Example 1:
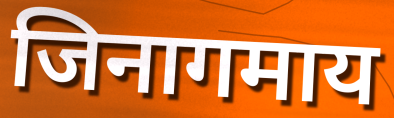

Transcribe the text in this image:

जिनागमाय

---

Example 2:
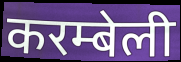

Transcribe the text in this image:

करम्बेली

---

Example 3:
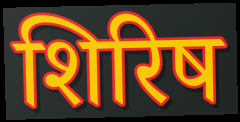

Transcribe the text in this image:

शिरिष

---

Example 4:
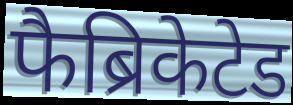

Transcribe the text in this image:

फैब्रिकेटेड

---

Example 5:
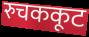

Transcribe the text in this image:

रुचककूट